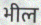
भील